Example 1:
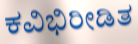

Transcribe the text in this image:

ಕವಿಭಿರೀಡಿತ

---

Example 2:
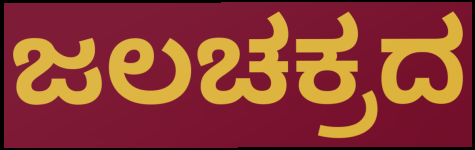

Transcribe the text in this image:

ಜಲಚಕ್ರದ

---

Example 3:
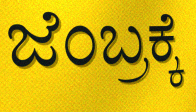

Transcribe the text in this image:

ಜೆಂಬ್ರಕ್ಕೆ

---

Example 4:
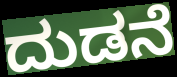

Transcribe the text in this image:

ದುಡನೆ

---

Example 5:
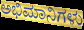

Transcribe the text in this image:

ಅಭಿಮಾನಿಗಳು